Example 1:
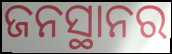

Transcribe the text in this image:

ଜନସ୍ଥାନର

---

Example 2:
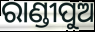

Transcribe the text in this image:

ରାଣ୍ଡୀପୁଅ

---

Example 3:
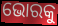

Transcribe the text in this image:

ଭୋରକୁ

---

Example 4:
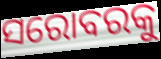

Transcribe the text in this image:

ସରୋବରକୁ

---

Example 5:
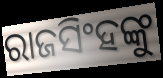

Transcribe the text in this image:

ରାଜସିଂହଙ୍କୁ